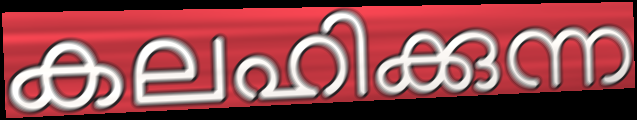
കലഹിക്കുന്ന